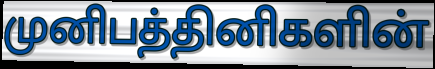
முனிபத்தினிகளின்